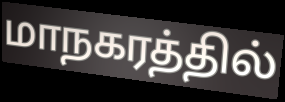
மாநகரத்தில்